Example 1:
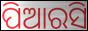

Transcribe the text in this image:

ପିଆରସି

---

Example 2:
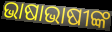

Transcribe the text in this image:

ଭାଷାଭାଷୀଙ୍କ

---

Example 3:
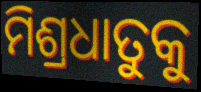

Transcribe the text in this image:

ମିଶ୍ରଧାତୁକୁ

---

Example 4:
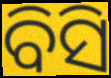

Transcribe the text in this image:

ବିସି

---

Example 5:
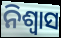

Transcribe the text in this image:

ନିଶ୍ଵାସ